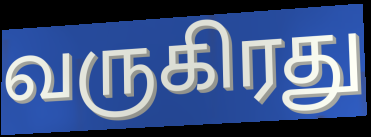
வருகிரது